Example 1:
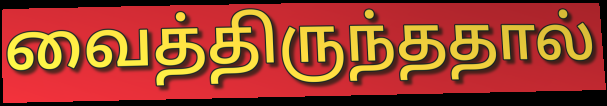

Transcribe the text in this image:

வைத்திருந்ததால்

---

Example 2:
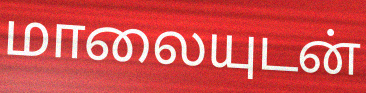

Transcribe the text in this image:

மாலையுடன்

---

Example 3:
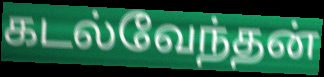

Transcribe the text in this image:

கடல்வேந்தன்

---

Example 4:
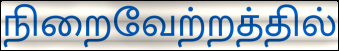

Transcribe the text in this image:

நிறைவேற்றத்தில்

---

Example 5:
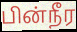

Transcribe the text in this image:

பின்நீர